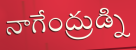
నాగేంద్రుడ్ని